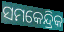
ସମକେନ୍ଦ୍ରିକ